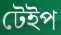
টেইপ